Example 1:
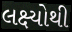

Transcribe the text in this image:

લક્ષ્યોથી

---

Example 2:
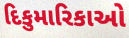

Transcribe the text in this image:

દિકુમારિકાઓ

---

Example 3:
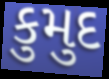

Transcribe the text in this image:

કુમુદ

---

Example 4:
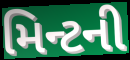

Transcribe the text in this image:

મિન્ટની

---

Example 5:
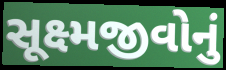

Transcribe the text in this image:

સૂક્ષ્મજીવોનું